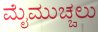
ಮೈಮುಚ್ಚಲು